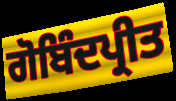
ਗੋਬਿੰਦਪ੍ਰੀਤ